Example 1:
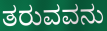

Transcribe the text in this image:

ತರುವವನು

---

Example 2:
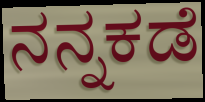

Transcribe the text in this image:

ನನ್ನಕಡೆ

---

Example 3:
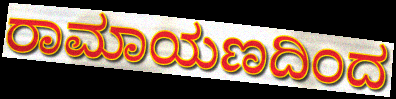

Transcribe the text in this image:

ರಾಮಾಯಣದಿಂದ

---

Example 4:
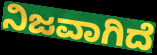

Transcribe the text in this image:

ನಿಜವಾಗಿದೆ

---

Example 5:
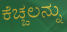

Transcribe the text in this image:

ಕೆಚ್ಚಲನ್ನು